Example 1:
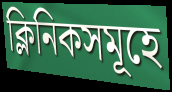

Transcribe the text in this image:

ক্লিনিকসমূহে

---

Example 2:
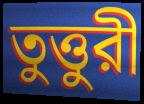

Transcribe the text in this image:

তুত্তুরী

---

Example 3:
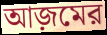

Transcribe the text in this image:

আজ়মের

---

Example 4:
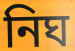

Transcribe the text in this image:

নিঘ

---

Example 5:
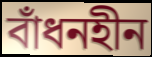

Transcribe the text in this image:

বাঁধনহীন